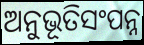
ଅନୁଭୂତିସଂପନ୍ନ